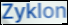
Zyklon